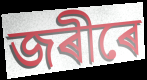
জৰীৰে